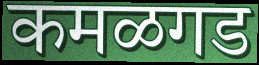
कमळगड